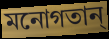
মনোগতান্